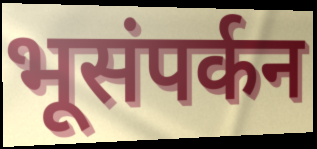
भूसंपर्कन